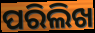
ପରିଲିଖ